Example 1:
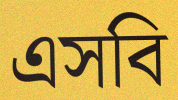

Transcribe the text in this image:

এসবি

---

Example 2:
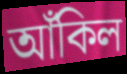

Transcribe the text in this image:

আঁকিল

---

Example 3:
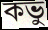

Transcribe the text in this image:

কভু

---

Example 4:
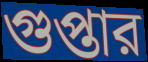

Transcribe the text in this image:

গুপ্তার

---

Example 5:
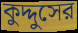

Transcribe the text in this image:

কুদ্দুসের